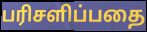
பரிசளிப்பதை